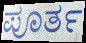
ಪೂರ್ತ